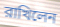
রাখিলেন